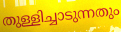
തുള്ളിച്ചാടുന്നതും